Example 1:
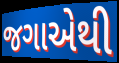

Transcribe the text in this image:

જગાએથી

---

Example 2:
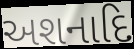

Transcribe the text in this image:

અશનાદિ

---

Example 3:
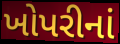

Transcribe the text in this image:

ખોપરીનાં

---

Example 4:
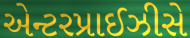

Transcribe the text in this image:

એન્ટરપ્રાઈઝીસે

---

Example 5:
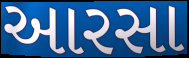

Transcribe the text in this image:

આરસા